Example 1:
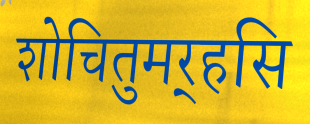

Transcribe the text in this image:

शोचितुमर्हसि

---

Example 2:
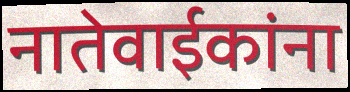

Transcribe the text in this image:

नातेवाईकांना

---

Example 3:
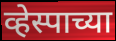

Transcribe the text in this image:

व्हेस्पाच्या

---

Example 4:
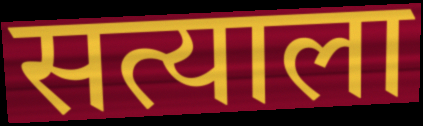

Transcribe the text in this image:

सत्याला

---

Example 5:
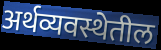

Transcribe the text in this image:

अर्थव्यवस्थेतील